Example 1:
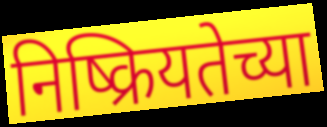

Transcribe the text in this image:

निष्क्रियतेच्या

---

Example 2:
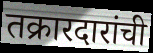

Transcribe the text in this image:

तक्रारदारांची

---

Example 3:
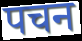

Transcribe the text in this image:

पचन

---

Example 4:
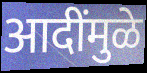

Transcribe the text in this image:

आदींमुळे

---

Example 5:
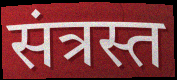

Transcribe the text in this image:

संत्रस्त